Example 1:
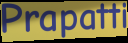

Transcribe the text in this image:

Prapatti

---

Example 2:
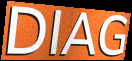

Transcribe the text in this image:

DIAG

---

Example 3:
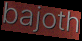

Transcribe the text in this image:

bajoth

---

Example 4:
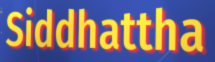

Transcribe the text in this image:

Siddhattha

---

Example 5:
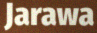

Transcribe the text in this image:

Jarawa